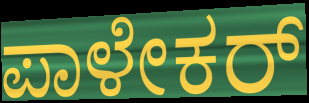
ಪಾಳೇಕರ್